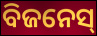
ବିଜନେସ୍